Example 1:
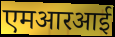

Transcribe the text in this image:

एमआरआई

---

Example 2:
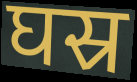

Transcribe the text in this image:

घस्र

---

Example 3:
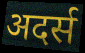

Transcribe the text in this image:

अदर्स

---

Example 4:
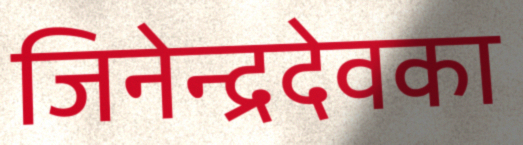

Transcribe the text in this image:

जिनेन्द्रदेवका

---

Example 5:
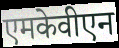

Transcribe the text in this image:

एमकेवीएन